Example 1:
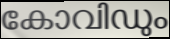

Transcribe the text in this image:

കോവിഡും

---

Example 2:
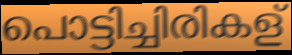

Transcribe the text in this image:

പൊട്ടിച്ചിരികള്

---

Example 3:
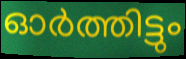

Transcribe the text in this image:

ഓർത്തിട്ടും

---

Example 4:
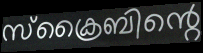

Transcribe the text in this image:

സ്ക്രൈബിന്റെ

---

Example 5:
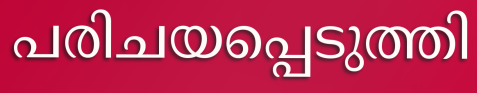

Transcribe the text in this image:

പരിചയപ്പെടുത്തി